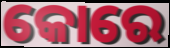
କୋରେ